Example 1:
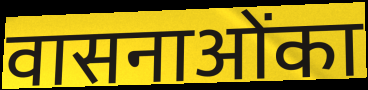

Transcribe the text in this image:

वासनाओंका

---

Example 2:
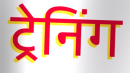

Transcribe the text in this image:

ट्रेनिंग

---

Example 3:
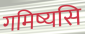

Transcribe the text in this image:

गमिष्यसि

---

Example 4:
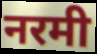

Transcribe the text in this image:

नरमी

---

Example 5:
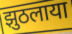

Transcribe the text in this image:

झुठलाया